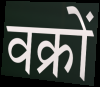
वक्रों